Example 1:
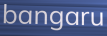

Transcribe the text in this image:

bangaru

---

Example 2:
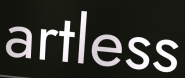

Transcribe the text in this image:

artless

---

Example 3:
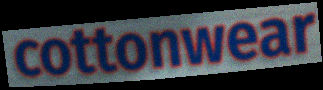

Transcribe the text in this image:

cottonwear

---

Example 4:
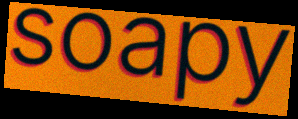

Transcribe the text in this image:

soapy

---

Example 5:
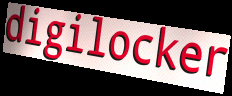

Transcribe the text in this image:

digilocker